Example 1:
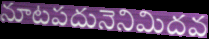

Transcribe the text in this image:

నూటపదునెనిమిదవ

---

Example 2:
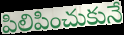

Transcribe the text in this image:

పిలిపించుకునే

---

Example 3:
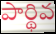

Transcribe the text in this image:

పార్థివ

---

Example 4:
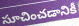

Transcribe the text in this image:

సూచించడానికీ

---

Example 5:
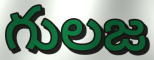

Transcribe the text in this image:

గులజ